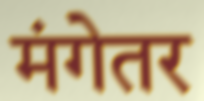
मंगेतर